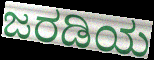
ಜರಡಿಯ